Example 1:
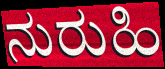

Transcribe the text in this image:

ನುರುಹಿ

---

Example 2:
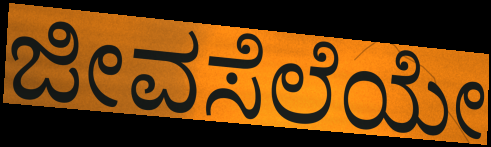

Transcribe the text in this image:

ಜೀವಸೆಲೆಯೇ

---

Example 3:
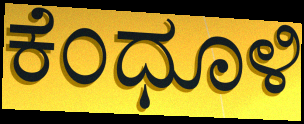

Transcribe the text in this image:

ಕೆಂಧೂಳಿ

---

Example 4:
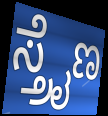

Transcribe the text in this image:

ಸ್ತ್ರೈಣ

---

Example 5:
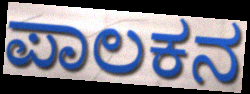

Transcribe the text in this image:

ಪಾಲಕನ